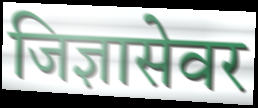
जिज्ञासेवर